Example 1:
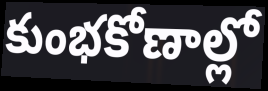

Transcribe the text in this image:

కుంభకోణాల్లో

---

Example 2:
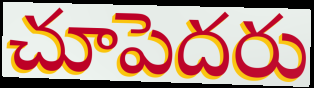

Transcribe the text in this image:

చూపెదరు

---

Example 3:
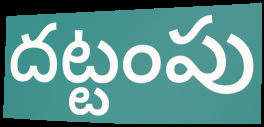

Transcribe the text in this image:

దట్టంపు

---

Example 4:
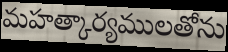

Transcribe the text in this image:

మహత్కార్యములతోను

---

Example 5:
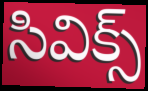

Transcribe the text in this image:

సివిక్స్